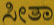
ಸೀತಾ